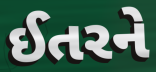
ઈતરને